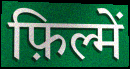
फ़िल्में